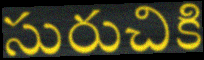
సురుచికి